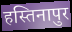
हस्तिनापुर